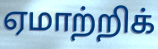
ஏமாற்றிக்